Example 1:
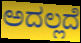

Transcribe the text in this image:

ಅದಲ್ಲದೆ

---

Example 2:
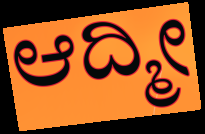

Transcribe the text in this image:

ಆದ್ಮೀ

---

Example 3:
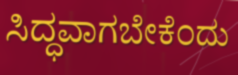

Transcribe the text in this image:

ಸಿದ್ಧವಾಗಬೇಕೆಂದು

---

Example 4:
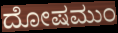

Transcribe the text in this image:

ದೋಷಮುಂ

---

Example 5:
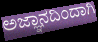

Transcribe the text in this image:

ಅಜ್ಞಾನದಿಂದಾಗಿ